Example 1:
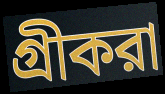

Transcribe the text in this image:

গ্রীকরা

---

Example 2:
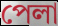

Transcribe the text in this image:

পেলা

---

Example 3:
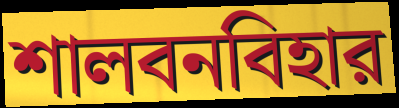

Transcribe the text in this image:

শালবনবিহার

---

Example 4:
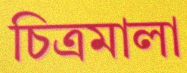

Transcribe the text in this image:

চিত্রমালা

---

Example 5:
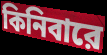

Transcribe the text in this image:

কিনিবারে